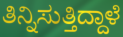
ತಿನ್ನಿಸುತ್ತಿದ್ದಾಳೆ